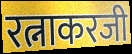
रत्नाकरजी